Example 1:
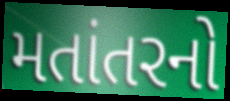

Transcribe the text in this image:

મતાંતરનો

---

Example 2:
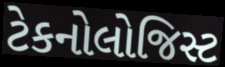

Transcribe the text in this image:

ટેકનોલોજિસ્ટ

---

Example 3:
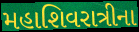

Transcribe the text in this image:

મહાશિવરાત્રીના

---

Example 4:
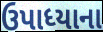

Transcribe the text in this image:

ઉપાધ્યાના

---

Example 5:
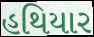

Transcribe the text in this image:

હથિયાર